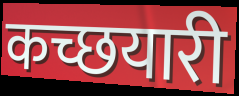
कच्छयारी